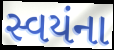
સ્વયંના